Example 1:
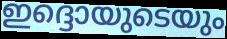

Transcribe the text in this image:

ഇദ്ദൊയുടെയും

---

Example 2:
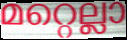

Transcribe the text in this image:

മറ്റെല്ലാ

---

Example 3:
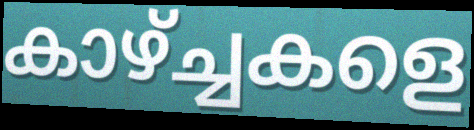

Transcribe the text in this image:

കാഴ്ച്ചകളെ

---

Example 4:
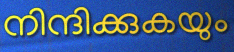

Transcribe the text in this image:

നിന്ദിക്കുകയും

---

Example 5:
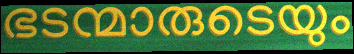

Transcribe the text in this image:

ഭടന്മാരുടെയും